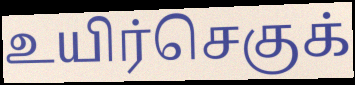
உயிர்செகுக்